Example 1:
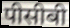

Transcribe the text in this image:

पीसीबी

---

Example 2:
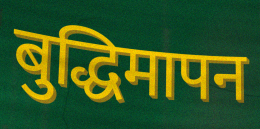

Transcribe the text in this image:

बुद्धिमापन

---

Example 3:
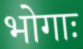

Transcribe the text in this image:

भोगाः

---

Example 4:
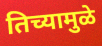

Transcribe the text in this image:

तिच्यामुळे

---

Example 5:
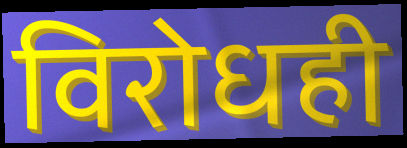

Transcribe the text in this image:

विरोधही